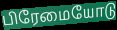
பிரேமையோடு